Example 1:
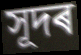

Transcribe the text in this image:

সূদৰ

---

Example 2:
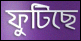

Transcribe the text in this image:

ফুটিছে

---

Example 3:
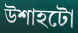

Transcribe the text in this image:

উশাহটো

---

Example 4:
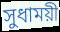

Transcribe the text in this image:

সুধাময়ী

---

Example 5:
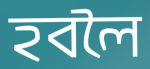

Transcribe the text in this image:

হবলৈ